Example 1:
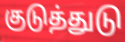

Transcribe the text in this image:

குடுத்துடு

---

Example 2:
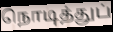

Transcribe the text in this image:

நொடித்துப்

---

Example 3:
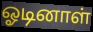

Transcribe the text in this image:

ஓடினாள்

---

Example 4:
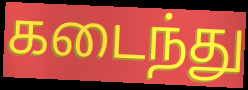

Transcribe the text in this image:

கடைந்து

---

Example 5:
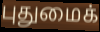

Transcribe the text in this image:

புதுமைக்